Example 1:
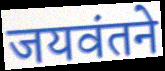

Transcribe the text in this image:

जयवंतने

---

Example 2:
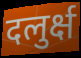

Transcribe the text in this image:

दलुर्क्ष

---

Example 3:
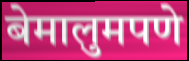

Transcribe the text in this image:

बेमालुमपणे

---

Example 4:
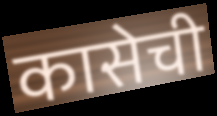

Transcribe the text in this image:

कासेची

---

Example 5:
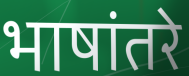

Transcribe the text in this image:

भाषांतरे